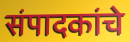
संपादकांचे